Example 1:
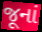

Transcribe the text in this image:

જૂનાં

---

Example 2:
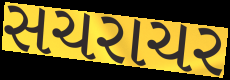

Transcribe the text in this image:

સચરાચર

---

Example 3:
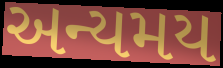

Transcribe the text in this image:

અન્યમય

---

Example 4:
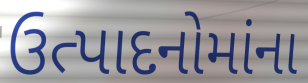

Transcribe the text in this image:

ઉત્પાદનોમાંના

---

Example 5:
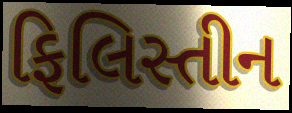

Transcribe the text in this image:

ફિલિસ્તીન